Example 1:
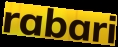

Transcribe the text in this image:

rabari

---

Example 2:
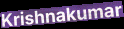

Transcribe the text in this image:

Krishnakumar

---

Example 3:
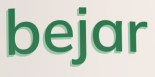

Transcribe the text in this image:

bejar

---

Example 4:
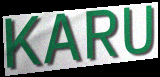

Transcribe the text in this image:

KARU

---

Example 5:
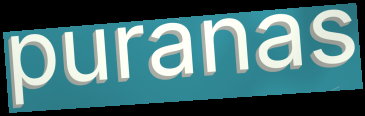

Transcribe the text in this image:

puranas